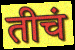
तीचं